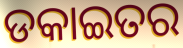
ଡକାଇତର